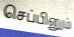
செப்பினும்